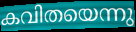
കവിതയെന്നു